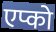
एप्को